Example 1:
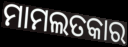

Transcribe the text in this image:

ମାମଲତକାର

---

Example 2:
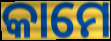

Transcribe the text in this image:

କାମେ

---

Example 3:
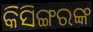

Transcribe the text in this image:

କିସିଙ୍ଗରଙ୍କ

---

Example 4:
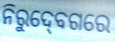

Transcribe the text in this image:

ନିରୁଦ୍‍ବେଗରେ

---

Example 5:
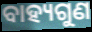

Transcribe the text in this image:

ବାହ୍ୟଗୁଣ